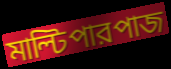
মাল্টিপারপাজ